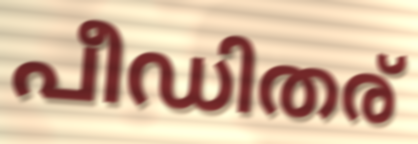
പീഡിതര്